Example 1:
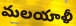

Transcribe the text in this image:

మలయాళీ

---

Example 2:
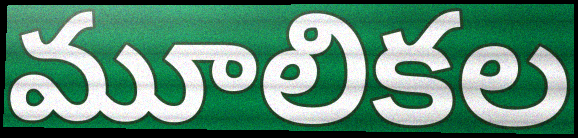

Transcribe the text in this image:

మూలికల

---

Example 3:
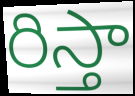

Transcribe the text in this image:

రిస్తా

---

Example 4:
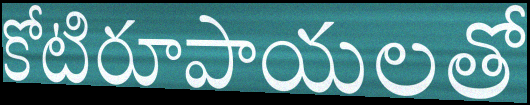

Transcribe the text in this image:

కోటిరూపాయలతో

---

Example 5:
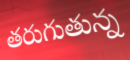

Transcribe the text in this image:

తరుగుతున్న